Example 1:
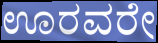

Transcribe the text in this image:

ಊರವರೇ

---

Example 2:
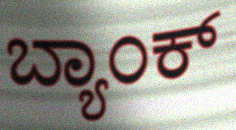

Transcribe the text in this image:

ಬ್ಯಾಂಕ್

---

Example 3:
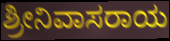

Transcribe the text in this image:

ಶ್ರೀನಿವಾಸರಾಯ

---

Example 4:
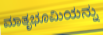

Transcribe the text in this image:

ಮಾತೃಭೂಮಿಯನ್ನು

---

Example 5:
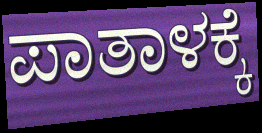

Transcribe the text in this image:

ಪಾತಾಳಕ್ಕೆ